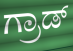
ಗ್ರಾಡ್